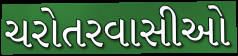
ચરોતરવાસીઓ